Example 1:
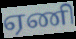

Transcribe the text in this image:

ஏணி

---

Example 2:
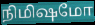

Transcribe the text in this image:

நிமிஷமோ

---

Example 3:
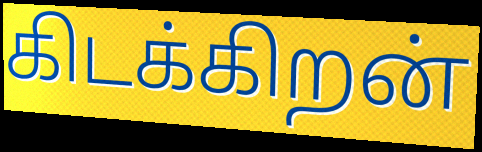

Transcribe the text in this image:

கிடக்கிறன்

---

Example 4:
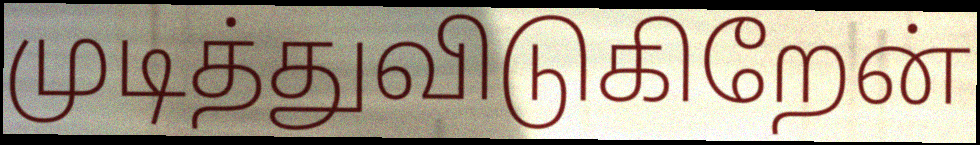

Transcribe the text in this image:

முடித்துவிடுகிறேன்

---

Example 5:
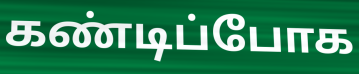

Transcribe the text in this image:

கண்டிப்போக